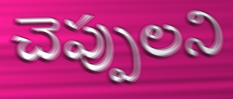
చెప్పులని